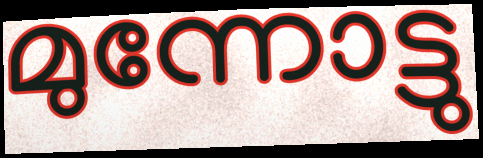
മുന്നോട്ടു